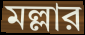
মল্লার